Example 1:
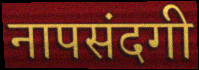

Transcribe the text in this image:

नापसंदगी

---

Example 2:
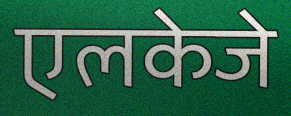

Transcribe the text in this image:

एलकेजे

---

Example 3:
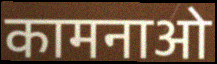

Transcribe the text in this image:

कामनाओ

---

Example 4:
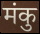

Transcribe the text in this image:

मंकु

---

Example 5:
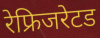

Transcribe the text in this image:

रेफ्रिजरेटड